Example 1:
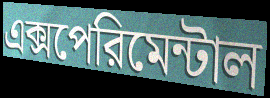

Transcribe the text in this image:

এক্সপেরিমেন্টাল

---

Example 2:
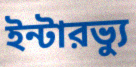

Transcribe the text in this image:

ইন্টারভ্যু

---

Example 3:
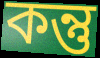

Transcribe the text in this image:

কন্তু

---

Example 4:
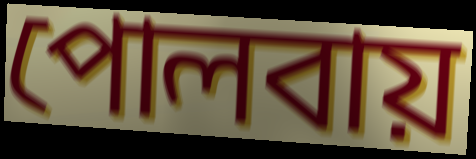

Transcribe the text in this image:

পোলবায়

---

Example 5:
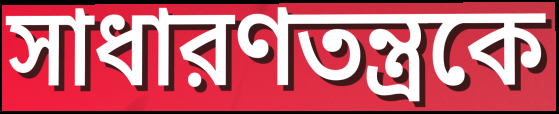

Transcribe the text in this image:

সাধারণতন্ত্রকে